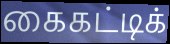
கைகட்டிக்